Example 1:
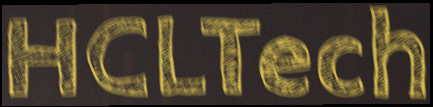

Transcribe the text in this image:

HCLTech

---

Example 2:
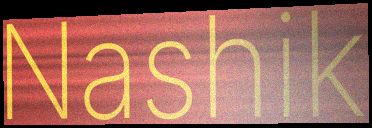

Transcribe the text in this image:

Nashik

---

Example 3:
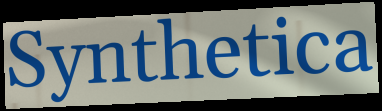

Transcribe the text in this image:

Synthetica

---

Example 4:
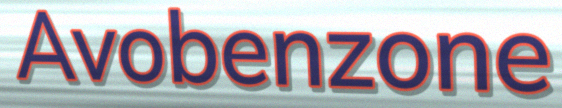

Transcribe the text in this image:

Avobenzone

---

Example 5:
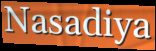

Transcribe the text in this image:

Nasadiya